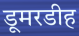
डूमरडीह